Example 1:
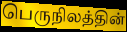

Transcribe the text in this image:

பெருநிலத்தின்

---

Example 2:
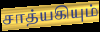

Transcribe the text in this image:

சாத்யகியும்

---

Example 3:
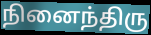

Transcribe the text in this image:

நினைந்திரு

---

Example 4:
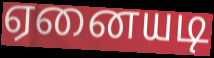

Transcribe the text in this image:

ஏனையடி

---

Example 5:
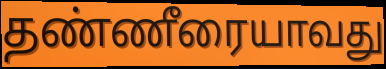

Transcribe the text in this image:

தண்ணீரையாவது